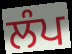
ਲੰਪ